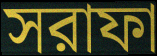
সরাফা